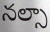
నల్సా